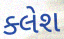
ક્લેશ